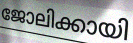
ജോലിക്കായി